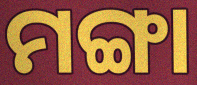
ମଙ୍ଗା